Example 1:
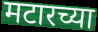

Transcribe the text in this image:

मटारच्या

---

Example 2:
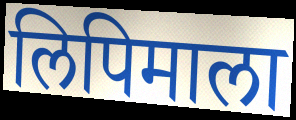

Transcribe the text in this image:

लिपिमाला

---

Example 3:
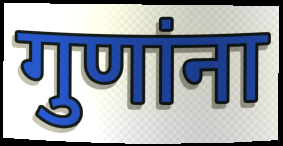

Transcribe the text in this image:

गुणांना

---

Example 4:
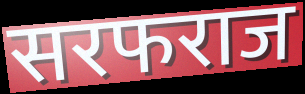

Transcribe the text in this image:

सरफराज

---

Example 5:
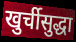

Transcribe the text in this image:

खुर्चीसुद्धा